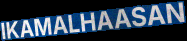
IKAMALHAASAN